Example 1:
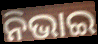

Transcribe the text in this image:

ନିଭାଇ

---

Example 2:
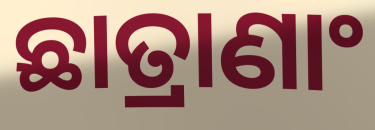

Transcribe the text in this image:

ଛାତ୍ରାଣାଂ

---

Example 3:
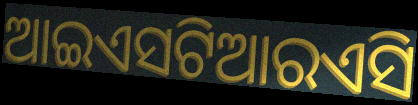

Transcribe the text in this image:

ଆଇଏସଟିଆରଏସି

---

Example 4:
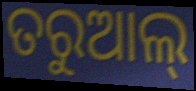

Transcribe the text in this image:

ତରୁଆଲ୍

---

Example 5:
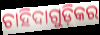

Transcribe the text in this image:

ଚାହିଦାଗୁଡ଼ିକର